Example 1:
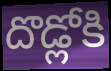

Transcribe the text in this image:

దొడ్లోకి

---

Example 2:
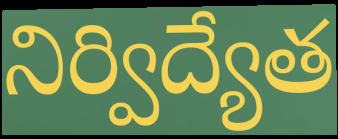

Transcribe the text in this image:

నిర్విద్యేత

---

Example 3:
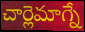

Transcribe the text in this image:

చార్లెమాగ్నే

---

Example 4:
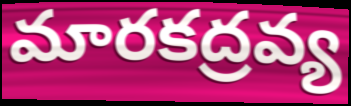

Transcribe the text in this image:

మారకద్రవ్య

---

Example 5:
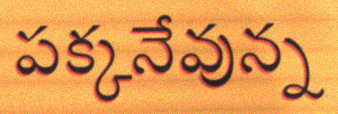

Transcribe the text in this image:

పక్కనేవున్న